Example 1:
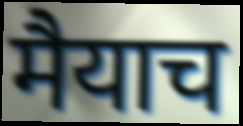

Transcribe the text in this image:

मैयाच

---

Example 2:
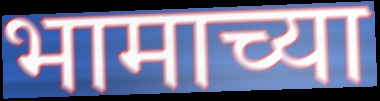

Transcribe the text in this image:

भामाच्या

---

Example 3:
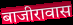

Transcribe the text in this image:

बाजीरावास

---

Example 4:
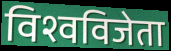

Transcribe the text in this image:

विश्वविजेता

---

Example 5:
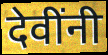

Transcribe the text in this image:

देवींनी